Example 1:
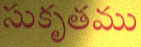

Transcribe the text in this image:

సుకృతము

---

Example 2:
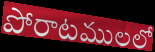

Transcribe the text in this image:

పోరాటములలో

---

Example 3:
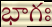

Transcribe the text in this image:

భాగః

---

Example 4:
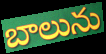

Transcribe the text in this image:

బాలును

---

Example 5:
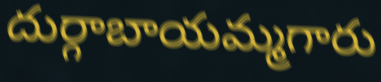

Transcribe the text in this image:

దుర్గాబాయమ్మగారు